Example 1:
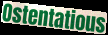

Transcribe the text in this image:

Ostentatious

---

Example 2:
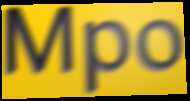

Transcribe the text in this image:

Mpo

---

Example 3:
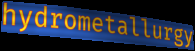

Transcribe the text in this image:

hydrometallurgy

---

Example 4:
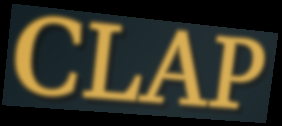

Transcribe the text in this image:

CLAP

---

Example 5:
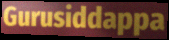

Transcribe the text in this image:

Gurusiddappa